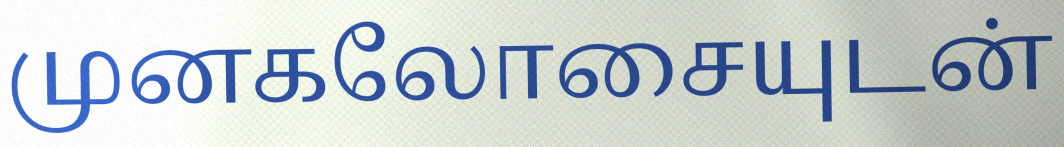
முனகலோசையுடன்